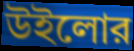
উইলোর